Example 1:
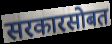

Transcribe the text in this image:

सरकारसोबत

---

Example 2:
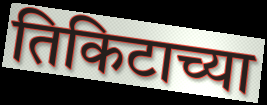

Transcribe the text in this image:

तिकिटाच्या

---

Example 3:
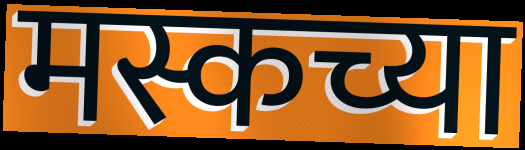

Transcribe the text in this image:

मस्कच्या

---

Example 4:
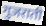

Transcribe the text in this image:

गुजराती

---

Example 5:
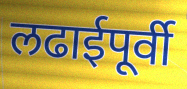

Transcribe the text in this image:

लढाईपूर्वी